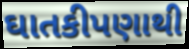
ઘાતકીપણાથી